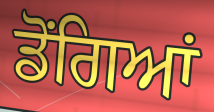
ਡੋਂਗਿਆਂ